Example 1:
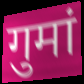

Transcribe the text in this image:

गुमां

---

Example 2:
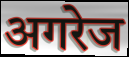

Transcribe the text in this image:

अगरेज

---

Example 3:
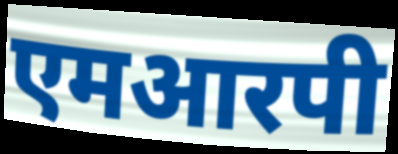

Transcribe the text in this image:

एमआरपी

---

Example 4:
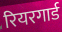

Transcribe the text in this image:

रियरगार्ड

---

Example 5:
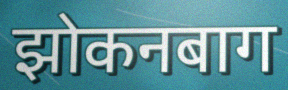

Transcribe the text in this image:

झोकनबाग